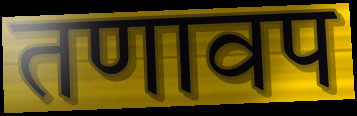
तणावप